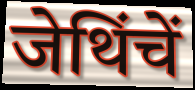
जेथिंचें